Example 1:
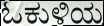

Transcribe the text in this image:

ಓಕುಳಿಯ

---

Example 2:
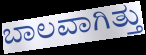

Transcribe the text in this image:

ಬಾಲವಾಗಿತ್ತು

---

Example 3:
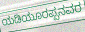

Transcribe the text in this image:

ಯಡಿಯೂರಪ್ಪನವರ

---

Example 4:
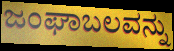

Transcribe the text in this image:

ಜಂಘಾಬಲವನ್ನು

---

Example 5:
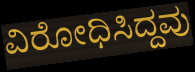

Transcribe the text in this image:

ವಿರೋಧಿಸಿದ್ದವು